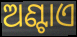
ଅଣ୍ଟାଏ